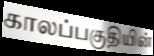
காலப்பகுதியின்